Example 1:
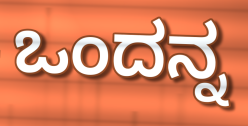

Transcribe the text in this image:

ಒಂದನ್ನ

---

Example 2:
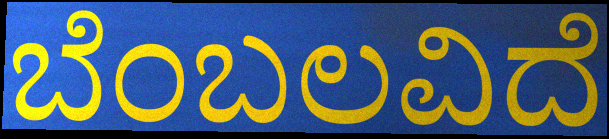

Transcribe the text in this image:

ಬೆಂಬಲವಿದೆ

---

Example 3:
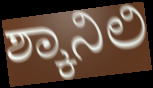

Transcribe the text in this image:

ಶ್ಕಾನಿಲಿ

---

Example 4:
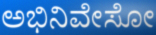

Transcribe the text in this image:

ಅಭಿನಿವೇಸೋ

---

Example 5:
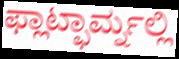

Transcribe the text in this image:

ಫ್ಲಾಟ್ಫಾರ್ಮ್ನಲ್ಲಿ